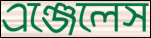
এঞ্জেলেস